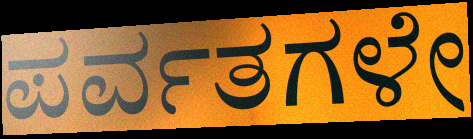
ಪರ್ವತಗಳೇ